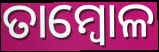
ତାମ୍ବୋଳ